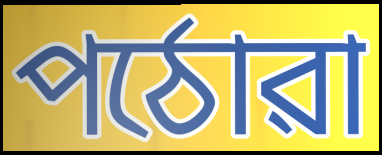
পঠোৱা